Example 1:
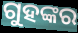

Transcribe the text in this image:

ଗୁହଙ୍କର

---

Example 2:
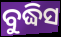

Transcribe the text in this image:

ବୁଦ୍ଧିସ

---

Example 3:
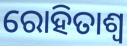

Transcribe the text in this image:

ରୋହିତାଶ୍ୱ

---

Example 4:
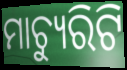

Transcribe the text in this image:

ମାଚ୍ୟୁରିଟି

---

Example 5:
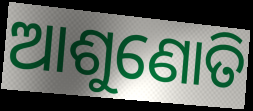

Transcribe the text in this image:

ଆଶୁଣୋତି